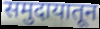
समुदायातून